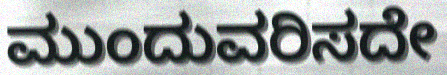
ಮುಂದುವರಿಸದೇ